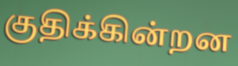
குதிக்கின்றன